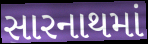
સારનાથમાં